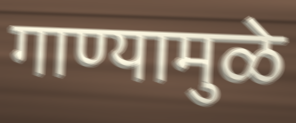
गाण्यामुळे